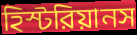
হিস্টরিয়ানস